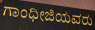
ಗಾಂಧೀಜಿಯವರು